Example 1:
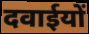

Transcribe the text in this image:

दवाईयों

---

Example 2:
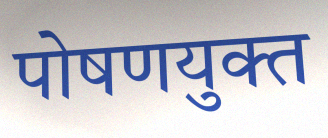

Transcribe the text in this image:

पोषणयुक्त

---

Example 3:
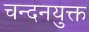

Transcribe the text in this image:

चन्दनयुक्त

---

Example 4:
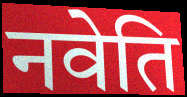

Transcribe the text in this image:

नवेति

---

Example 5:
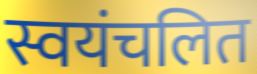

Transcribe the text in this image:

स्वयंचलित